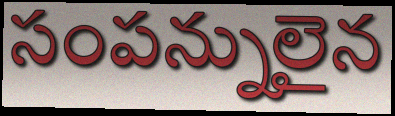
సంపన్నులైన